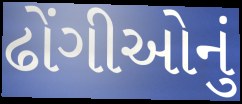
ઢોંગીઓનું